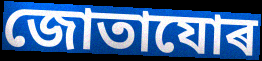
জোতাযোৰ